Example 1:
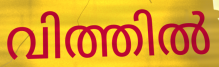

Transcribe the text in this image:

വിത്തിൽ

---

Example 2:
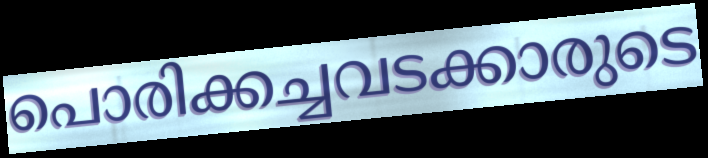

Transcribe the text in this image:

പൊരിക്കച്ചവടക്കാരുടെ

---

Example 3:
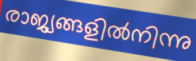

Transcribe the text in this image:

രാജ്യങ്ങളിൽനിന്നു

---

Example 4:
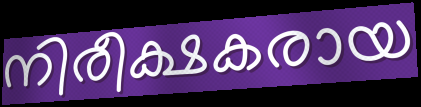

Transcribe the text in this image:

നിരീക്ഷകരായ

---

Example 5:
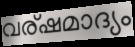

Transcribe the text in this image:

വര്ഷമാദ്യം